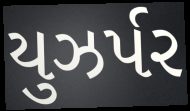
યુઝર્પર